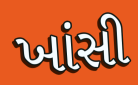
ખાંસી